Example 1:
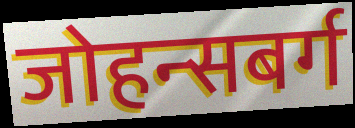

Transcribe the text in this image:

जोहन्सबर्ग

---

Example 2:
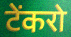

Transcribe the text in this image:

टेंकरो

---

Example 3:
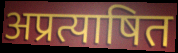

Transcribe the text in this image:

अप्रत्याषित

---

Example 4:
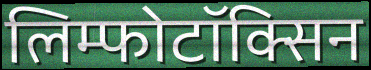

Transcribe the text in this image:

लिम्फोटॉक्सिन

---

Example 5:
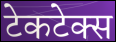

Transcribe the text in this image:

टेकटेक्स